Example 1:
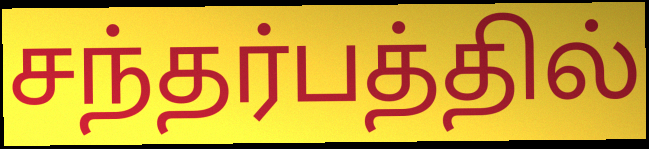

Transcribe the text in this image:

சந்தர்பத்தில்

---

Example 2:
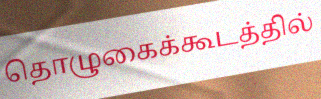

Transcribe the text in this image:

தொழுகைக்கூடத்தில்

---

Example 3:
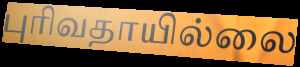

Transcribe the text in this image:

புரிவதாயில்லை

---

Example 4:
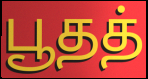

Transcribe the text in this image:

பூதத்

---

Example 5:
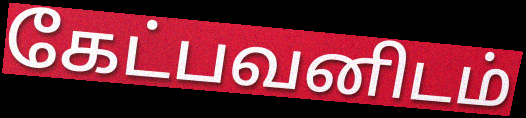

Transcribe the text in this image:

கேட்பவனிடம்